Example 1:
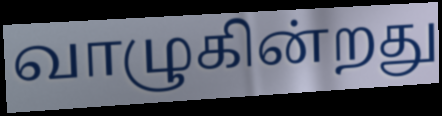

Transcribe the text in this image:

வாழுகின்றது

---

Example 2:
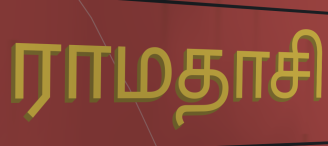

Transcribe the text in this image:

ராமதாசி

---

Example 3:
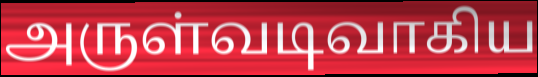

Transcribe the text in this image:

அருள்வடிவாகிய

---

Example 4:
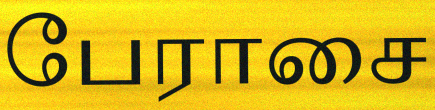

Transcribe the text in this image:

பேராசை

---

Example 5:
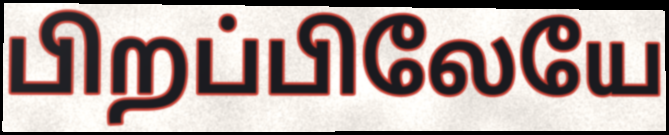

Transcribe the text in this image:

பிறப்பிலேயே